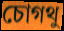
চোগথু